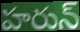
హరున్